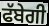
ਫੱਬੇਗੀ